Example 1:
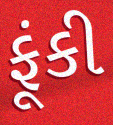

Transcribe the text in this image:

ફૂંકી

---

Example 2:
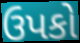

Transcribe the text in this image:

ઉપકો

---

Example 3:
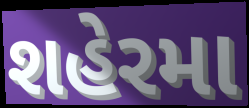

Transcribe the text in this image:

શહેરમા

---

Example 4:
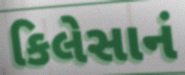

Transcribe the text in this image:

કિલેસાનં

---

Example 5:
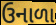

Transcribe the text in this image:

ઉનાળા